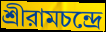
শ্রীরামচন্দ্রে